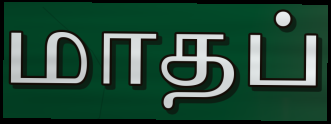
மாதப்